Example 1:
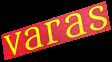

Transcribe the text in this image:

varas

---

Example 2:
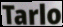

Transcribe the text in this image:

Tarlo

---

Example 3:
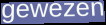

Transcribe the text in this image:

gewezen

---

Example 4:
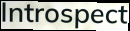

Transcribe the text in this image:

Introspect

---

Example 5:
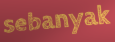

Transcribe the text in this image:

sebanyak